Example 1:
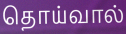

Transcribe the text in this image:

தொய்வால்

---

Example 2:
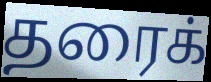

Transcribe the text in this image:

தரைக்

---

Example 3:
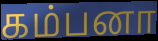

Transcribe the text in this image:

கம்பனா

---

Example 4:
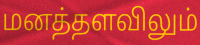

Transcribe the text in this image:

மனத்தளவிலும்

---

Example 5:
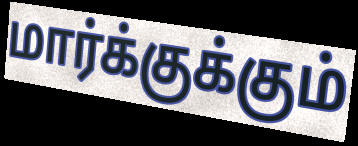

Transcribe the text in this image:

மார்க்குக்கும்